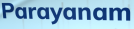
Parayanam